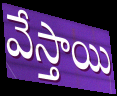
వేస్తాయి